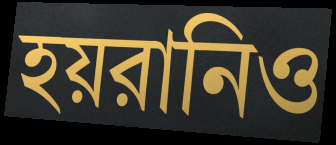
হয়রানিও